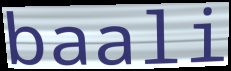
baali